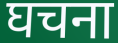
घचना